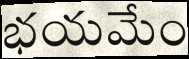
భయమేం